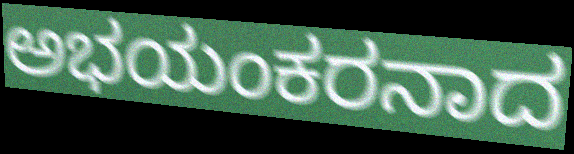
ಅಭಯಂಕರನಾದ